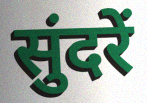
सुंदरें